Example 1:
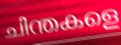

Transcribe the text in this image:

ചിന്തകളെ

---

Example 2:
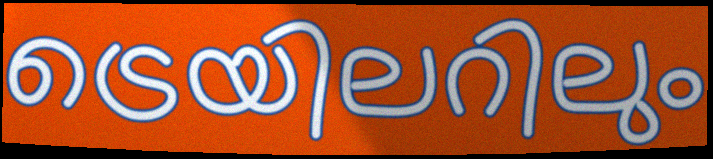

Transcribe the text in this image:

ട്രെയിലറിലും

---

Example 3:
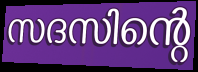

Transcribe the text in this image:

സദസിന്റെ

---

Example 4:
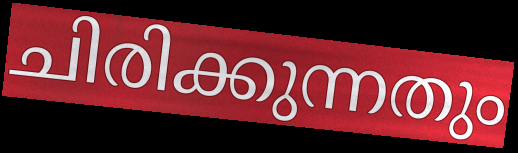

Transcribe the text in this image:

ചിരിക്കുന്നതും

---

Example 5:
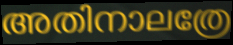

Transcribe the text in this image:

അതിനാലത്രേ